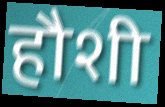
हौशी